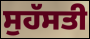
ਸੁਹੱਸਤੀ